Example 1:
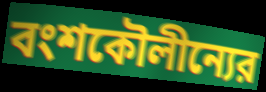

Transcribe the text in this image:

বংশকৌলীন্যের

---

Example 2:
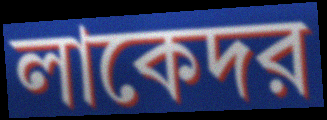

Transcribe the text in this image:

লাকেদর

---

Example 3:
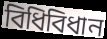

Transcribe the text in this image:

বিধিবিধান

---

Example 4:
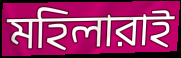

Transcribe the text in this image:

মহিলারাই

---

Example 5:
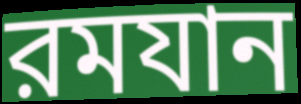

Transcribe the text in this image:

রমযান